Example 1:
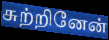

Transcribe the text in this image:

சுற்றினேன்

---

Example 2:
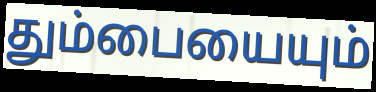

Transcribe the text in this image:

தும்பையையும்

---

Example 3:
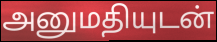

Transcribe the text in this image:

அனுமதியுடன்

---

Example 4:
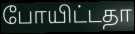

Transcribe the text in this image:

போயிட்டதா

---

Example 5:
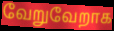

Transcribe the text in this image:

வேறுவேறாக